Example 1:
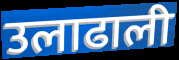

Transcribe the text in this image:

उलाढाली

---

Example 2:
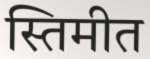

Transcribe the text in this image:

स्तिमीत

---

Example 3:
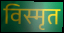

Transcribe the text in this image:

विस्मृत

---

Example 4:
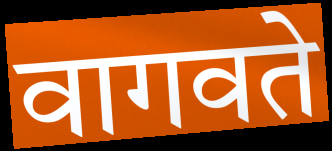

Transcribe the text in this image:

वागवते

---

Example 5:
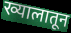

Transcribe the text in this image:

ख्यालातून